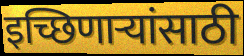
इच्छिणाऱ्यांसाठी